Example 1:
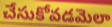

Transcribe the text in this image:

చేసుకోవడమెలా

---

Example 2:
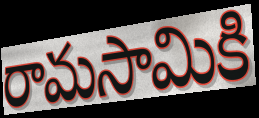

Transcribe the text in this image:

రామసామికి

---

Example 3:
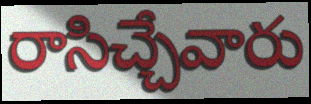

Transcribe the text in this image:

రాసిచ్చేవారు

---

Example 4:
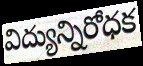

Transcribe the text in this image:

విద్యున్నిరోధక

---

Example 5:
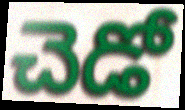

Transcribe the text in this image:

చెడో